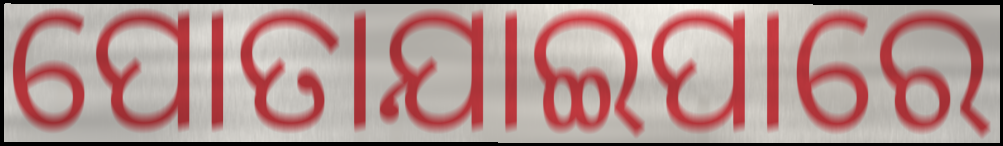
ପୋତାଯାଇପାରେ